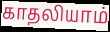
காதலியாம்